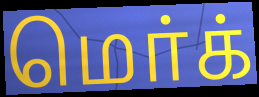
மெர்க்